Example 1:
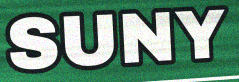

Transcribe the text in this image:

SUNY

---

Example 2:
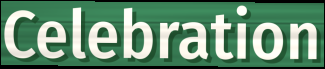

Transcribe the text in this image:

Celebration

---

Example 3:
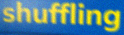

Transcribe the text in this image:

shuffling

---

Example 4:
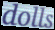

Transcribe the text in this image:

dolls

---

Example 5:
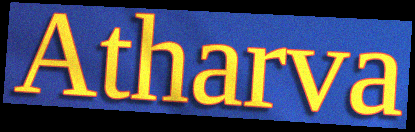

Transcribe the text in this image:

Atharva